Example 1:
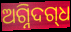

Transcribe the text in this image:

ଅଗ୍ନିଦଗ୍‌ଧ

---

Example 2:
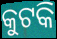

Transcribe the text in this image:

କୁଟକି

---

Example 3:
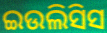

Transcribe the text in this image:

ଇଉଲିସିସ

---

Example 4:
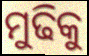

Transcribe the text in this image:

ମୁଢିକୁ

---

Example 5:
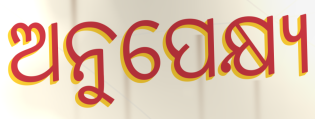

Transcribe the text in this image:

ଅନୁପେକ୍ଷ୍ୟ